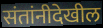
संतांनीदेखील